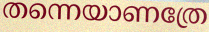
തന്നെയാണത്രേ